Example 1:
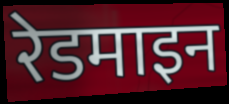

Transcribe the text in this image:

रेडमाइन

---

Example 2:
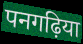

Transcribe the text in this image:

पनगढ़िया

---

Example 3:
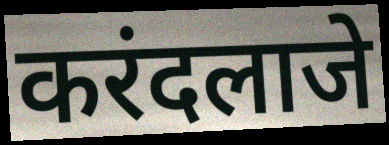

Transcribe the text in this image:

करंदलाजे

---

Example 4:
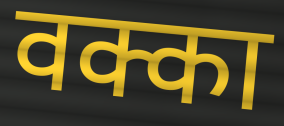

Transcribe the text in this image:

वक्का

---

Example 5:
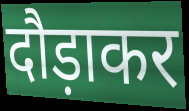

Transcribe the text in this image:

दौड़ाकर